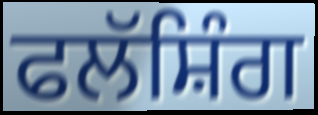
ਫਲੱਸ਼ਿੰਗ